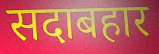
सदाबहार